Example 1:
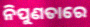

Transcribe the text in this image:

ନିପୁଣତାରେ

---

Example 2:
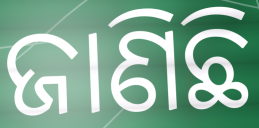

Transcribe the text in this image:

ଜାଣିଛି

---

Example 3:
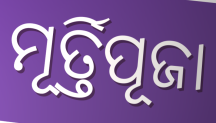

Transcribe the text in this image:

ମୂର୍ତ୍ତିପୂଜା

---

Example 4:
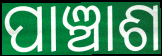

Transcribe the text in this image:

ପାଞ୍ଚାଶ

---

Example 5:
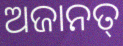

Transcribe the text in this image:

ଅଜାନତ୍